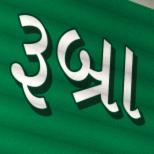
રૂબ્રા